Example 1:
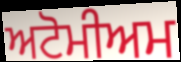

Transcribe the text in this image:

ਅਟੋਮੀਅਮ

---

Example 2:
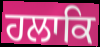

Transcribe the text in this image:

ਹਲਾਕਿ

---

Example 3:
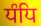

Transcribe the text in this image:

ਧੰਧਿ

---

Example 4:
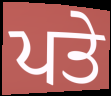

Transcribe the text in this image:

ਪਤੇ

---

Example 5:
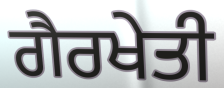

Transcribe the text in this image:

ਗੈਰਖੇਤੀ